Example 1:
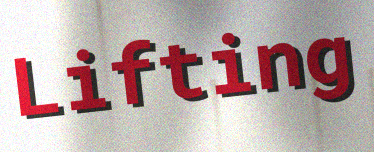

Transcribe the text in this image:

Lifting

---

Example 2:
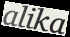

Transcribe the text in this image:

alika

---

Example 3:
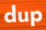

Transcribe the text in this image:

dup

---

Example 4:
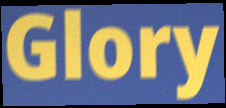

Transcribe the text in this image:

Glory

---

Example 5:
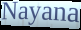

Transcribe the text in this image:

Nayana